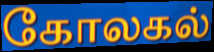
கோலகல்